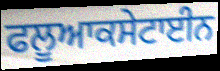
ਫਲੂਆਕਸੇਟਾਈਨ